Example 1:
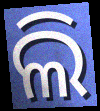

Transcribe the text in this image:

ଲି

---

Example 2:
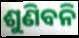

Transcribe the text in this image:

ଶୁଣିବନି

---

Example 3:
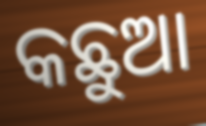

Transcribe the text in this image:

କଛୁଆ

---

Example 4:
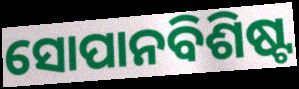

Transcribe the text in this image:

ସୋପାନବିଶିଷ୍ଟ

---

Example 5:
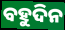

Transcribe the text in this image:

ବହୁଦିନ